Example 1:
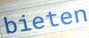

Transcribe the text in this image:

bieten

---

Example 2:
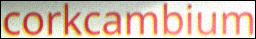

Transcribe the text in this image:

corkcambium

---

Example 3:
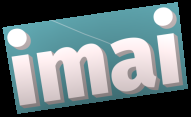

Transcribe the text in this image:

imai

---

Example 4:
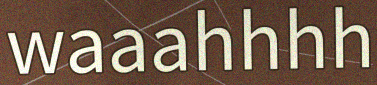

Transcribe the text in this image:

waaahhhh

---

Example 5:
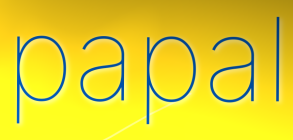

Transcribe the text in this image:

papal